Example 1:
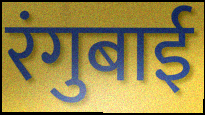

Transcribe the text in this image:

रंगुबाई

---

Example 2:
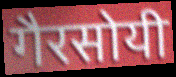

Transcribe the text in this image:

गैरसोयी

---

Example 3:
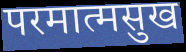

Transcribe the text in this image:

परमात्मसुख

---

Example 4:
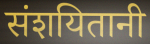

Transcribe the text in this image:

संशयितानी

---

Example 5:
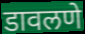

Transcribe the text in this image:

डावलणे